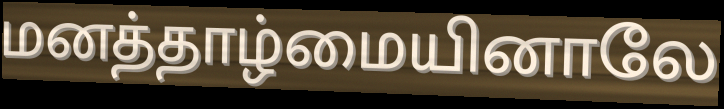
மனத்தாழ்மையினாலே